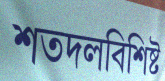
শতদলবিশিষ্ট